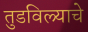
तुडविल्याचे